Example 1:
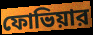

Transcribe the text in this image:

ফোভিয়ার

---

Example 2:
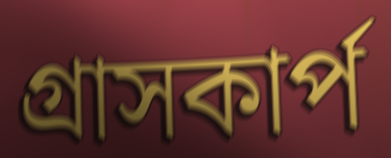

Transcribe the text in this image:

গ্রাসকার্প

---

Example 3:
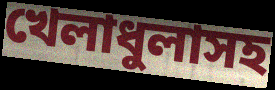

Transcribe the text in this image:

খেলাধুলাসহ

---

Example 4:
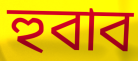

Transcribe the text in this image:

হুবাব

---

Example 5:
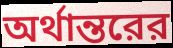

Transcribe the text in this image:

অর্থান্তরের